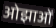
ओझाओं